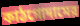
কাঠগোদামের